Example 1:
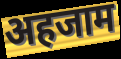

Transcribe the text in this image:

अहजाम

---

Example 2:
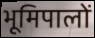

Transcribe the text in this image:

भूमिपालों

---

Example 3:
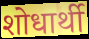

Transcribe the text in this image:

शोधार्थी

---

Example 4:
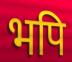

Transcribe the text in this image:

भपि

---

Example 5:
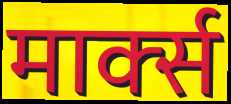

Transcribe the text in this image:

मार्क्‍स